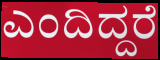
ಎಂದಿದ್ದರೆ